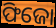
ଫିଜୋ